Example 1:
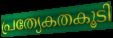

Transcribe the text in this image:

പ്രത്യേകതകൂടി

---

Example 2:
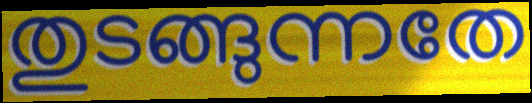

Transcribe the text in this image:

തുടങ്ങുന്നതേ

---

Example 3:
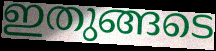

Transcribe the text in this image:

ഇതുങ്ങടെ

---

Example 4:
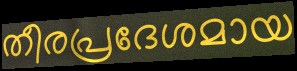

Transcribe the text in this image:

തീരപ്രദേശമായ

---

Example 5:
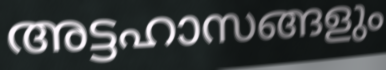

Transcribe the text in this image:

അട്ടഹാസങ്ങളും